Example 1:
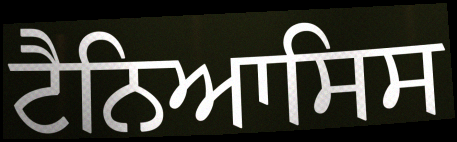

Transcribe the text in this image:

ਟੈਨਿਆਸਿਸ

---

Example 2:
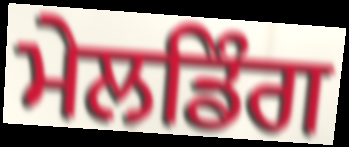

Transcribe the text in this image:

ਮੇਲਡਿੰਗ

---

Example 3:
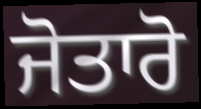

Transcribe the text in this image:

ਜੋਤਾਰੋ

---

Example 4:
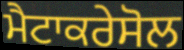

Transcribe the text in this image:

ਮੈਟਾਕਰੇਸੋਲ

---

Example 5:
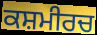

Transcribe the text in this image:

ਕਸ਼ਮੀਰਚ